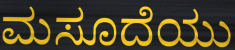
ಮಸೂದೆಯು